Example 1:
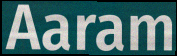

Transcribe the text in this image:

Aaram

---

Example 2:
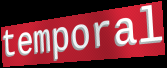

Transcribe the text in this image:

temporal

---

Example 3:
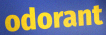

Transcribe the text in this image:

odorant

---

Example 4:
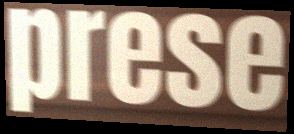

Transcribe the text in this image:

prese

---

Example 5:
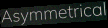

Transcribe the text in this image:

Asymmetrical